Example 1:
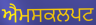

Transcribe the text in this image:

ਐਮਸਕਲਪਟ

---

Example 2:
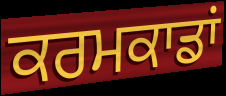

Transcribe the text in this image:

ਕਰਮਕਾਡਾਂ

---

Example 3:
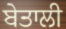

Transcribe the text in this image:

ਬੇਤਾਲੀ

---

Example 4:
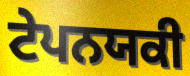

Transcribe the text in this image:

ਟੇਪਨਯਕੀ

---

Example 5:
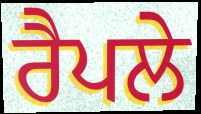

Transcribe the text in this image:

ਰੈਪਲੇ